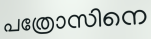
പത്രോസിനെ